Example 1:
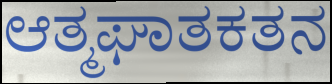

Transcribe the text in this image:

ಆತ್ಮಘಾತಕತನ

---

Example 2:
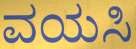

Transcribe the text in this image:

ವಯಸಿ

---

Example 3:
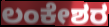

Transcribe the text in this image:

ಲಂಕೇಶರ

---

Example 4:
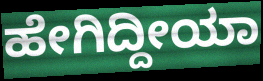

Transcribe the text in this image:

ಹೇಗಿದ್ದೀಯಾ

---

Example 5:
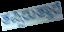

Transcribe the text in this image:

ತಪ್ಪಿರುತ್ತಾರೆ